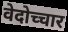
वेदोच्चार